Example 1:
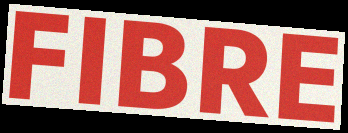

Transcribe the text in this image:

FIBRE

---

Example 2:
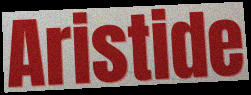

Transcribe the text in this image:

Aristide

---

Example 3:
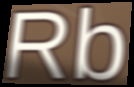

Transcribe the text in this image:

Rb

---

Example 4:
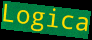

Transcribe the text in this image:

Logica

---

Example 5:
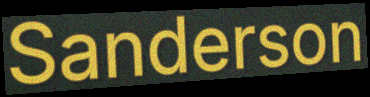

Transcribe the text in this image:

Sanderson